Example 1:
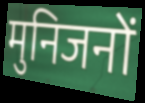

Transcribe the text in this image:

मुनिजनों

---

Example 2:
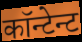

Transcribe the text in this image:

कॉन्टेन्ट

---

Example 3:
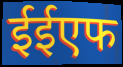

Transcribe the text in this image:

ईईएफ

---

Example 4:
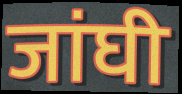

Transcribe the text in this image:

जांघी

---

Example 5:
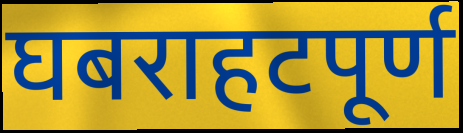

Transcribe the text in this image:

घबराहटपूर्ण